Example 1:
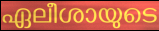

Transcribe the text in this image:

ഏലീശായുടെ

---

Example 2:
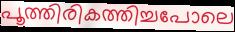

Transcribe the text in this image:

പൂത്തിരികത്തിച്ചപോലെ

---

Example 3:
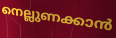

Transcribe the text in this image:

നെല്ലുണക്കാൻ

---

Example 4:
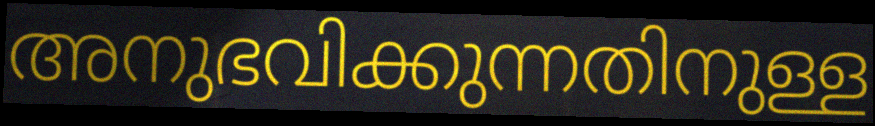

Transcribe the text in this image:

അനുഭവിക്കുന്നതിനുള്ള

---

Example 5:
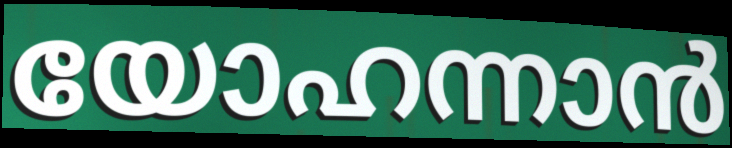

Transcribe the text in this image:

യോഹന്നാൻ